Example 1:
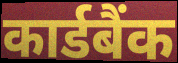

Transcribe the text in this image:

कार्डबैंक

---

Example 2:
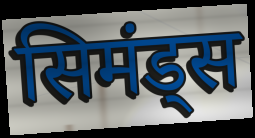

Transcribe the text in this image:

सिमंड्स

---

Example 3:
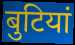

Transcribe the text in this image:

बुटियां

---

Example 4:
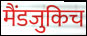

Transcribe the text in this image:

मैंडजुकिच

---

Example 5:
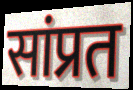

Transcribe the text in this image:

सांप्रत